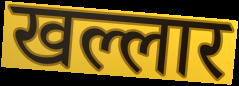
खल्लार